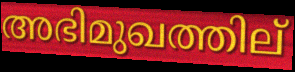
അഭിമുഖത്തില്